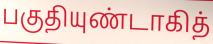
பகுதியுண்டாகித்